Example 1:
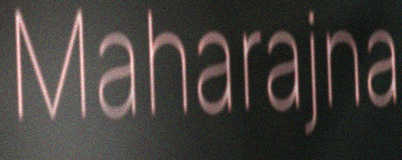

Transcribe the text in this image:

Maharajna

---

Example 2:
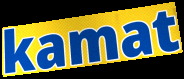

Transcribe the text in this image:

kamat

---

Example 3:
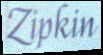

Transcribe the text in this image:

Zipkin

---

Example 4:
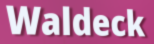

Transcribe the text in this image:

Waldeck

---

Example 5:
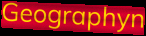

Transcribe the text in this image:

Geographyn